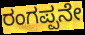
ರಂಗಪ್ಪನೇ